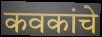
कवकांचे